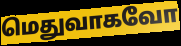
மெதுவாகவோ